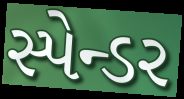
સ્પેન્ડર